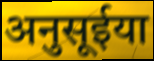
अनुसूईया